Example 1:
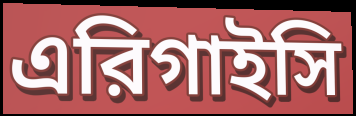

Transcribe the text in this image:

এরিগাইসি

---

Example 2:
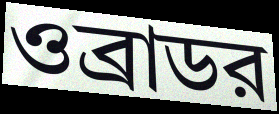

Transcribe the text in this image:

ওব্রাডর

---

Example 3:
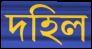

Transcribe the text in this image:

দহিল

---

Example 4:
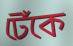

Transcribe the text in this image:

টেঁকে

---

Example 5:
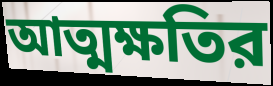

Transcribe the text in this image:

আত্মক্ষতির